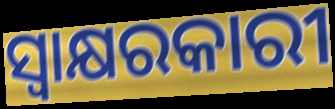
ସ୍ୱାକ୍ଷରକାରୀ